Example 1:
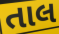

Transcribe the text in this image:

તાલ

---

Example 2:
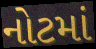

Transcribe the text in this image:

નોટમાં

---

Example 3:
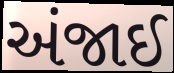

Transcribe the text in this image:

અંજાઈ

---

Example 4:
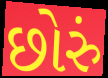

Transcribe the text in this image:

છોરું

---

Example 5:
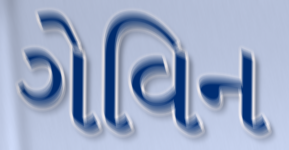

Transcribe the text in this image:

ગેવિન